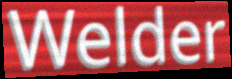
Welder